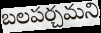
బలపర్చమని